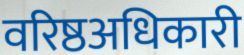
वरिष्ठअधिकारी